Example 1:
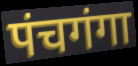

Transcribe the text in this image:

पंचगंगा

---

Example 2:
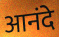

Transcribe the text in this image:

आनंदे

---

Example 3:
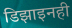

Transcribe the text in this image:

डिझाइनही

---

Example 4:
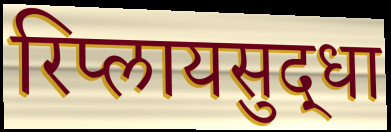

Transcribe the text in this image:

रिप्लायसुद्धा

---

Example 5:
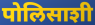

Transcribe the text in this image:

पोलिसाशी